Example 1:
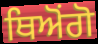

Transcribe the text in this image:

ਥਿਅੋਂਗੋ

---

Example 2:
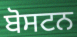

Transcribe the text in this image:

ਬੋਸਟਨ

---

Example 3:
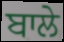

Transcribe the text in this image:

ਬਾਲੇ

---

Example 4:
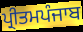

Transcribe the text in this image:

ਪ੍ਰੀਤਮਪੰਜਾਬ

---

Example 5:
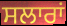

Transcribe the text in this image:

ਸਲਾਰਾਂ